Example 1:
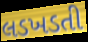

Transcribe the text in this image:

લડખડતી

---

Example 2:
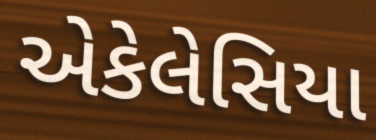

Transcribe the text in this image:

એકેલેસિયા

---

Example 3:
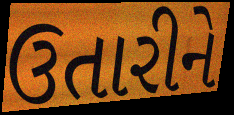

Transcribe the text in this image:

ઉતારીને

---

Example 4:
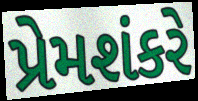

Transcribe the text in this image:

પ્રેમશંકરે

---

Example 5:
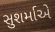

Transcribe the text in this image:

સુશર્માએ